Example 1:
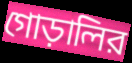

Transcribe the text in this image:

গোড়ালির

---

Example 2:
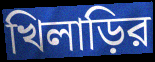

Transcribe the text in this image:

খিলাড়ির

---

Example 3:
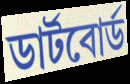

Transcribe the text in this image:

ডার্টবোর্ড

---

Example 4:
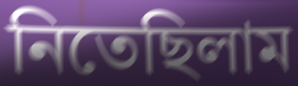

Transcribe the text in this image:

নিতেছিলাম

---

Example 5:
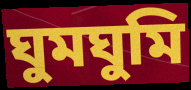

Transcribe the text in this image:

ঘুমঘুমি